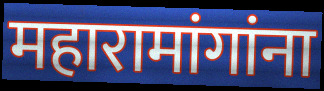
महारामांगांना